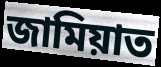
জামিয়াত